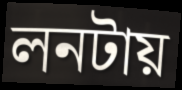
লনটায়